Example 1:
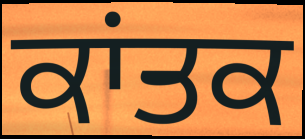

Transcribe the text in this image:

ਕਾਂਤਕ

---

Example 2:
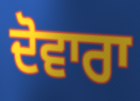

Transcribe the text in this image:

ਦੋਵਾਰਾ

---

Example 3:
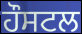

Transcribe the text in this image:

ਹੌਸਟਲ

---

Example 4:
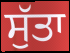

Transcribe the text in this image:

ਸੁੱਤਾ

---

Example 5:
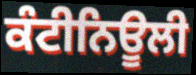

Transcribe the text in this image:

ਕੰਟੀਨਿਊਲੀ